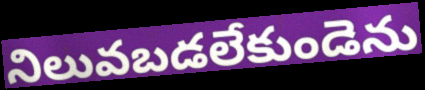
నిలువబడలేకుండెను